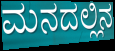
ಮನದಲ್ಲಿನ